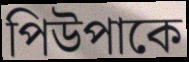
পিউপাকে